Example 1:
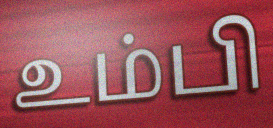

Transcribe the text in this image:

உம்பி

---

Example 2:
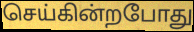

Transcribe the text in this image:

செய்கின்றபோது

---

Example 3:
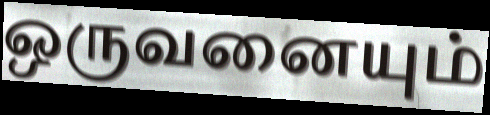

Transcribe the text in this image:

ஒருவனையும்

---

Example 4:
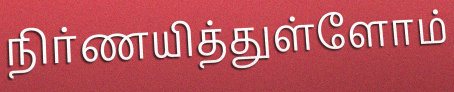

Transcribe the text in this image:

நிர்ணயித்துள்ளோம்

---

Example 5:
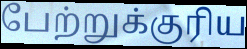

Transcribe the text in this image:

பேற்றுக்குரிய